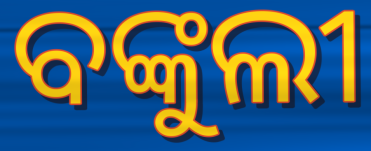
ବଙ୍କୁଲୀ